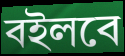
বইলবে